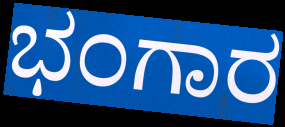
ಭಂಗಾರ